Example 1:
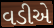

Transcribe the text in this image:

વડીએ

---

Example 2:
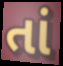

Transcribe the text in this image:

તાં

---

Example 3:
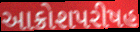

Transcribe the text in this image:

આક્રોશપરીષહ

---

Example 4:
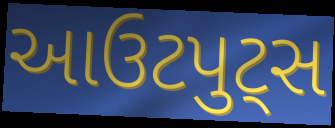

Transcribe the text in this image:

આઉટપુટ્સ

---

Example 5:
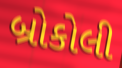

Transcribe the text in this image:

બ્રોકોલી